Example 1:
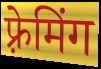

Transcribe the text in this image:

फ़्रेमिंग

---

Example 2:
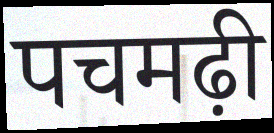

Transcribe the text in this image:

पचमढ़ी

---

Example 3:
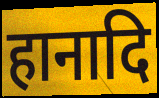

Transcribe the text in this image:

हानादि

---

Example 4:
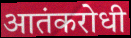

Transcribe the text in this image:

आतंकरोधी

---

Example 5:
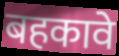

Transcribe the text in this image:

बहकावे